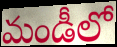
మండీలో